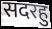
सदरहु